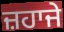
ਜ਼ਹਾਜੇ